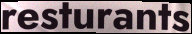
resturants